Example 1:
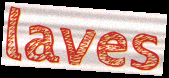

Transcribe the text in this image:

laves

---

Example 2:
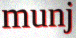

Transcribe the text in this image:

munj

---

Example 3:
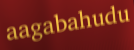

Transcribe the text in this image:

aagabahudu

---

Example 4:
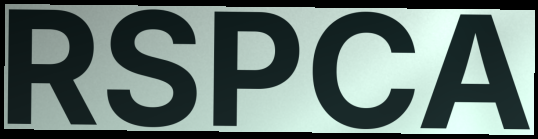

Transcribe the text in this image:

RSPCA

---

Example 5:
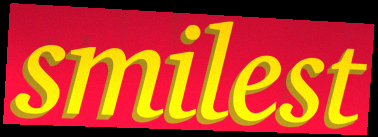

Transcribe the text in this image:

smilest